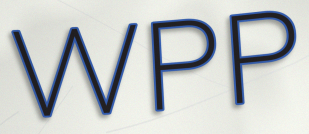
WPP